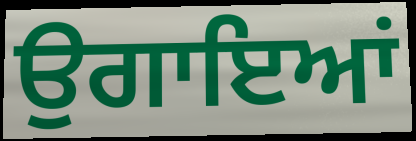
ਉਗਾਇਆਂ